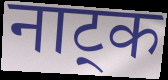
नाट्क